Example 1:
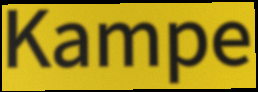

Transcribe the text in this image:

Kampe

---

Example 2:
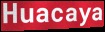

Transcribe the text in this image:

Huacaya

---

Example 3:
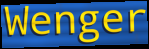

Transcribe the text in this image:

Wenger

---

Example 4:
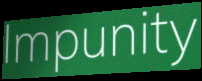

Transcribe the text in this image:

Impunity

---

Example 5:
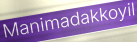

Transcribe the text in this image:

Manimadakkoyil